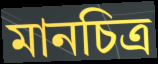
মানচিত্ৰ